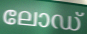
ലോഡ്